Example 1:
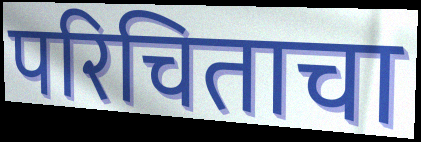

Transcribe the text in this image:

परिचिताचा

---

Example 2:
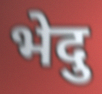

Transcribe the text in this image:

भेदु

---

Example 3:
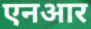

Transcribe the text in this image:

एनआर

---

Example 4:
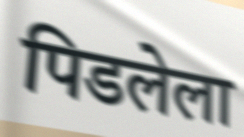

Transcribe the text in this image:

पिडलेला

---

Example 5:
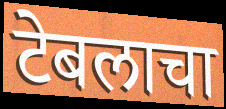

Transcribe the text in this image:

टेबलाचा